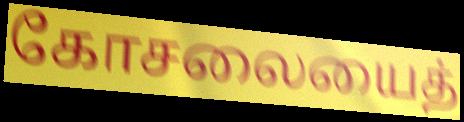
கோசலையைத்